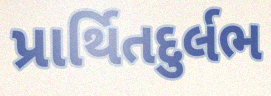
પ્રાર્થિતદુર્લભ